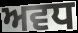
ਅਵਧ